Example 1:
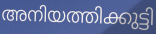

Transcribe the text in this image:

അനിയത്തിക്കുട്ടി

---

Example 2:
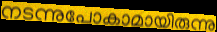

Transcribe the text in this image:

നടന്നുപോകാമായിരുന്നു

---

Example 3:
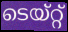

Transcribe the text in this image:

ടെയ്റ്റ്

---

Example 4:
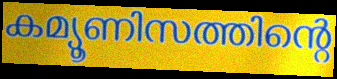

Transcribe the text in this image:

കമ്യൂണിസത്തിന്റെ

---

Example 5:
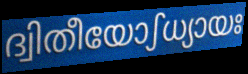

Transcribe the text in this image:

ദ്വിതീയോഽധ്യായഃ